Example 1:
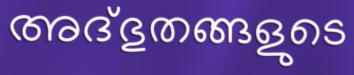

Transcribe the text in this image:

അദ്ഭുതങ്ങളുടെ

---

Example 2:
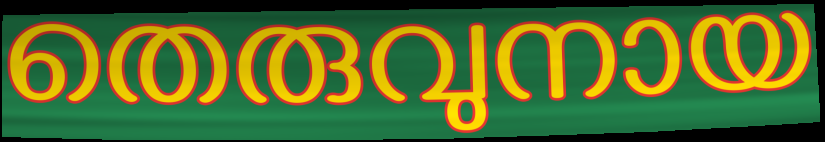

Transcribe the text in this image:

തെരുവുനായ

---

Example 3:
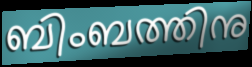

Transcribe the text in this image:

ബിംബത്തിനു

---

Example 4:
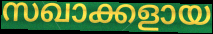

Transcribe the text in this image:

സഖാക്കളായ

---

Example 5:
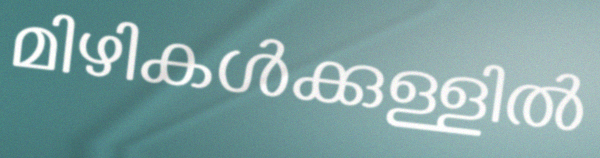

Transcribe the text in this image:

മിഴികൾക്കുള്ളിൽ